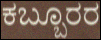
ಕಬ್ಬೂರರ